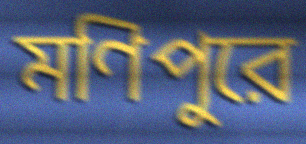
মণিপুরে